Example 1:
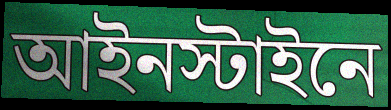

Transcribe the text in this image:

আইনস্টাইনে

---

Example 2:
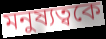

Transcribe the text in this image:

মনুষ্যত্বকে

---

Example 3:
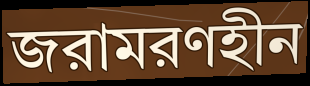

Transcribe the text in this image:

জরামরণহীন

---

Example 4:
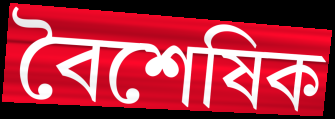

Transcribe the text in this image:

বৈশেষিক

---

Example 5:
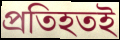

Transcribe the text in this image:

প্রতিহতই